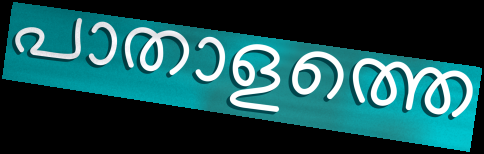
പാതാളത്തെ